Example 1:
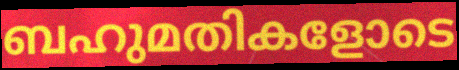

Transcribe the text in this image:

ബഹുമതികളോടെ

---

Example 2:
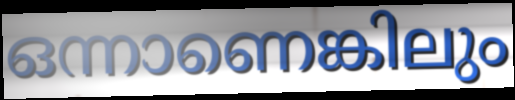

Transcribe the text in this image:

ഒന്നാണെങ്കിലും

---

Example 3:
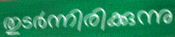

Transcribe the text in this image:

തുടർന്നിരിക്കുന്നു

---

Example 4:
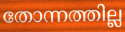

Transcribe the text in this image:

തോന്നത്തില്ല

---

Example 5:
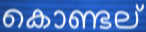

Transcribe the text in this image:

കൊണ്ടല്